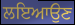
ਲਇਆਉਣ